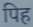
पिह